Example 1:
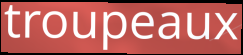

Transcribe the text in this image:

troupeaux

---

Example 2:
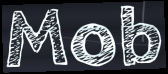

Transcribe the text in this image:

Mob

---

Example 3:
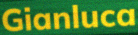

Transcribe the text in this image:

Gianluca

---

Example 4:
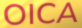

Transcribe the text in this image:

OICA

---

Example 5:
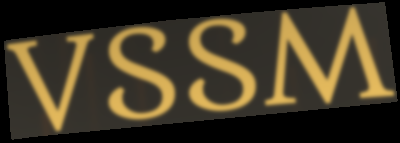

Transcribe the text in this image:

VSSM